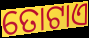
ତୋଟାଏ